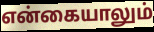
என்கையாலும்